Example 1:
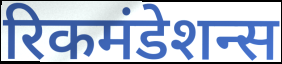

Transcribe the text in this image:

रिकमंडेशन्स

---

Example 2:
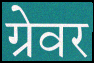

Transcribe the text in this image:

ग्रेवर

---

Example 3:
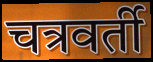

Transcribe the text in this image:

चत्रवर्ती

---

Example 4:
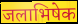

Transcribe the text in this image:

जलाभिषेक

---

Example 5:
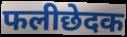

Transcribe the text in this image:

फलीछेदक